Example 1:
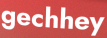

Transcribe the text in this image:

gechhey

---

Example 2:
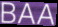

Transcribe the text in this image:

BAA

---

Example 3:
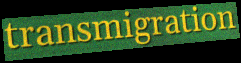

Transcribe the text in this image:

transmigration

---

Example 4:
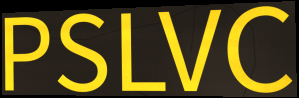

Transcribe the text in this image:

PSLVC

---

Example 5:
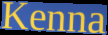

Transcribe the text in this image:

Kenna